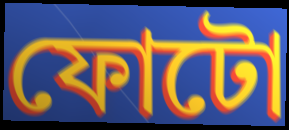
ফোটো